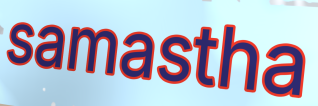
samastha